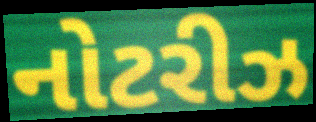
નોટરીઝ